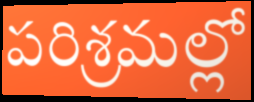
పరిశ్రమల్లో